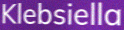
Klebsiella